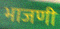
भाजणी